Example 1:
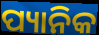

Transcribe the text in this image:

ପ୍ୟାନିକ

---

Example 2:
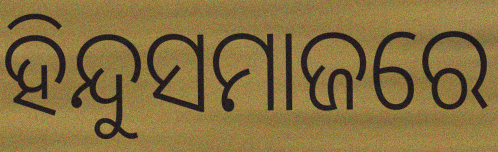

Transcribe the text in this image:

ହିନ୍ଦୁସମାଜରେ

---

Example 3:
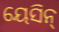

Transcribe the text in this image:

ୟେସିନ୍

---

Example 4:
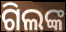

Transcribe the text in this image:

ଗିଲଙ୍କ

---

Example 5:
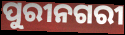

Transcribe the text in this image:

ପୁରୀନଗରୀ